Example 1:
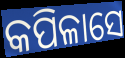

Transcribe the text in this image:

କପିଳାସେ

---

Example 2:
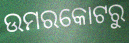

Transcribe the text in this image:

ଉମରକୋଟରୁ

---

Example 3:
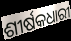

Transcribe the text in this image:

ଶୀର୍ଷକଧାରୀ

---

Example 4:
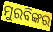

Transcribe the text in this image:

ମୁରବିଙ୍କର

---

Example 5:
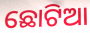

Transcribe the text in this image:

ଛୋଟିଆ